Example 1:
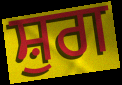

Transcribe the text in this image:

ਸ਼ੁਗ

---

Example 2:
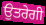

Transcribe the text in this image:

ਉਤਰੇਗੀ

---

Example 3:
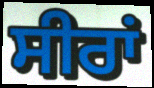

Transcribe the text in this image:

ਸੀਰਾਂ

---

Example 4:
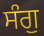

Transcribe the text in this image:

ਸੰਗੁ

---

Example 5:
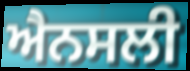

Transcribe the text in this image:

ਐਨਸਲੀ